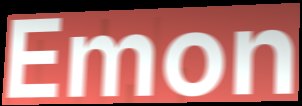
Emon